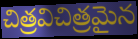
చిత్రవిచిత్రమైన